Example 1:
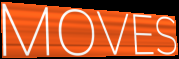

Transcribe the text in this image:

MOVES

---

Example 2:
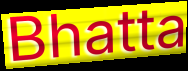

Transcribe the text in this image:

Bhatta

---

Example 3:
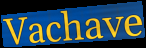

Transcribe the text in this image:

Vachave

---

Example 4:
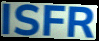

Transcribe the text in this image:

ISFR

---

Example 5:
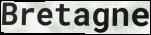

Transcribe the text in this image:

Bretagne